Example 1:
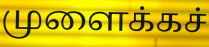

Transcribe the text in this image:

முளைக்கச்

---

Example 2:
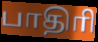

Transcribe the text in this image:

பாதிரி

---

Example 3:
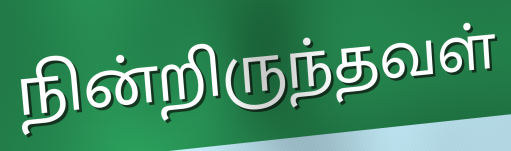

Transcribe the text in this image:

நின்றிருந்தவள்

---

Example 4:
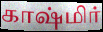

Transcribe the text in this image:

காஷ்மிர்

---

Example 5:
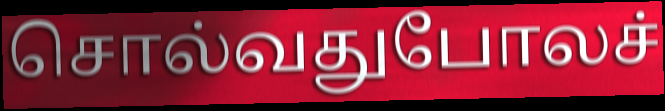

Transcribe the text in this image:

சொல்வதுபோலச்